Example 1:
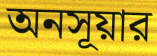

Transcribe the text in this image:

অনসূয়ার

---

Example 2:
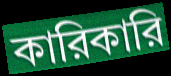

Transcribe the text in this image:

কারিকারি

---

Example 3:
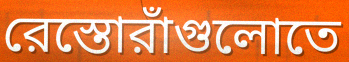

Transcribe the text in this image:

রেস্তোরাঁগুলোতে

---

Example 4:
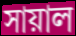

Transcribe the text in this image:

সায়াল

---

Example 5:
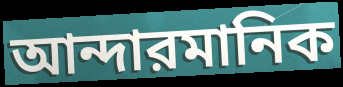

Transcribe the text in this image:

আন্দারমানিক